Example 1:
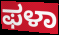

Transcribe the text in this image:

ಫಳಾ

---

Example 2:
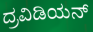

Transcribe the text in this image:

ದ್ರವಿಡಿಯನ್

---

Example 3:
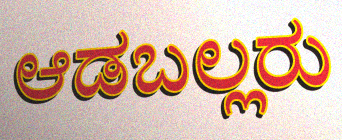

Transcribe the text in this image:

ಆಡಬಲ್ಲರು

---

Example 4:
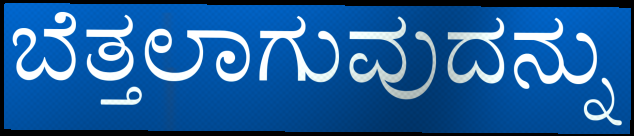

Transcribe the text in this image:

ಬೆತ್ತಲಾಗುವುದನ್ನು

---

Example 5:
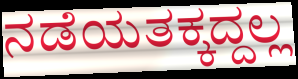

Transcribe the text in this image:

ನಡೆಯತಕ್ಕದ್ದಲ್ಲ